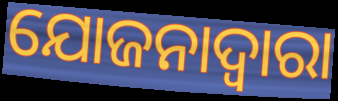
ଯୋଜନାଦ୍ବାରା